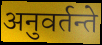
अनुवर्तन्ते